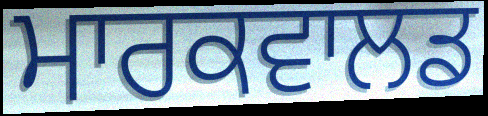
ਮਾਰਕਵਾਲਡ